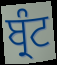
ਬ੍ਰੰਟ